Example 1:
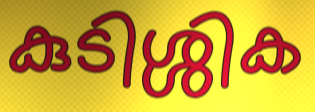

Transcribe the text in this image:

കുടിശ്ശിക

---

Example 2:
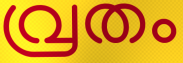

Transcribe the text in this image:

വ്രതം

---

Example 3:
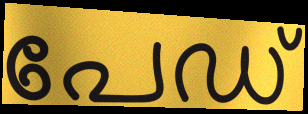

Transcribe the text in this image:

പേഡ്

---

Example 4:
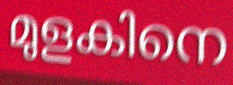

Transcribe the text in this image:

മുളകിനെ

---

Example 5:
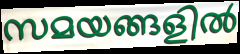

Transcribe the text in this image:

സമയങ്ങളിൽ